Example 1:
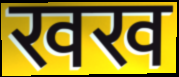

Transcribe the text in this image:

खख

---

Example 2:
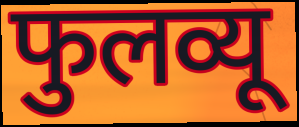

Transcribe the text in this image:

फुलव्यू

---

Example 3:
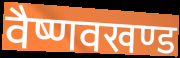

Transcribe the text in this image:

वैष्णवखण्ड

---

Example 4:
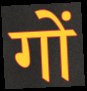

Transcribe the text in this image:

गों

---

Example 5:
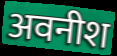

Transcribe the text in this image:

अवनीश